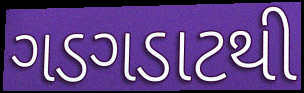
ગડગડાટથી